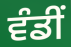
ਵੰਡੀਂ